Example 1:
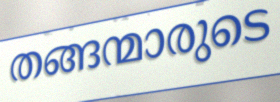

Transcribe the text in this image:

തങ്ങന്മാരുടെ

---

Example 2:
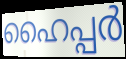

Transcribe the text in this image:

ഹൈപ്പർ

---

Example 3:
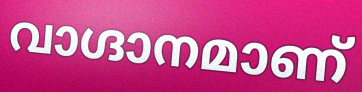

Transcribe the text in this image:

വാഗ്ദാനമാണ്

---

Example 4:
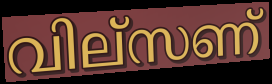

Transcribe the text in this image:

വില്സണ്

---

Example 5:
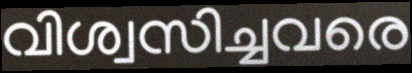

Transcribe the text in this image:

വിശ്വസിച്ചവരെ